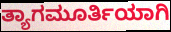
ತ್ಯಾಗಮೂರ್ತಿಯಾಗಿ